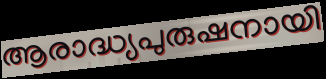
ആരാദ്ധ്യപുരുഷനായി